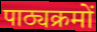
पाठ्यक्रमों